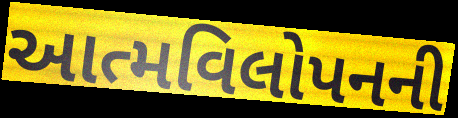
આત્મવિલોપનની